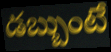
డబ్బుంటే